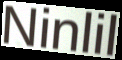
Ninlil